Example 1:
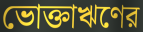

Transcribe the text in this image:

ভোক্তাঋণের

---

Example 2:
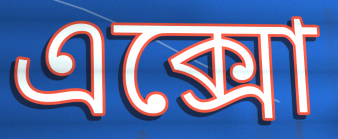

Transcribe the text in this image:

এক্সো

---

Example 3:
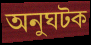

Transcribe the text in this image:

অনুঘটক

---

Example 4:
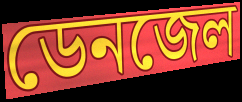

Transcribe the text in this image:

ডেনজেল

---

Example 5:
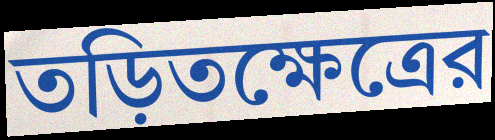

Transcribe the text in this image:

তড়িতক্ষেত্রের